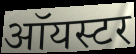
ऑयस्टर